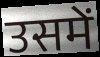
उसमें